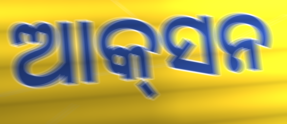
ଆକ୍‌ସନ